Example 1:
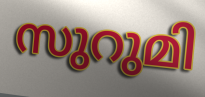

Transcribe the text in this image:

സുറുമി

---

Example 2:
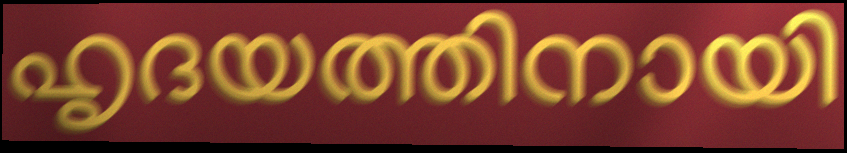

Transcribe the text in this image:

ഹൃദയത്തിനായി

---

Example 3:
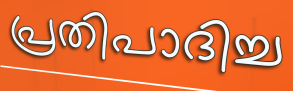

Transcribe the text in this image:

പ്രതിപാദിച്ച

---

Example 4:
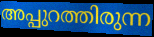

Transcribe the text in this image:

അപ്പുറത്തിരുന്ന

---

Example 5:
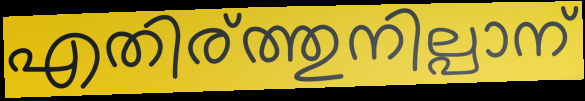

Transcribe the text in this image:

എതിര്ത്തുനില്പാന്